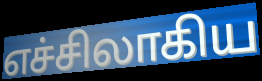
எச்சிலாகிய